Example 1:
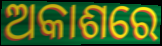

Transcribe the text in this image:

ଅକାଶରେ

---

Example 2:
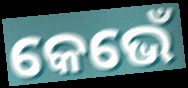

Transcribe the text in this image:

କେଭେଁ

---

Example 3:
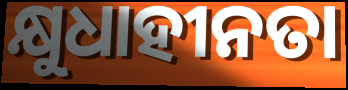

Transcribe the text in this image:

କ୍ଷୁଧାହୀନତା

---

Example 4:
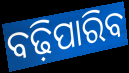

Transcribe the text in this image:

ବଢ଼ିପାରିବ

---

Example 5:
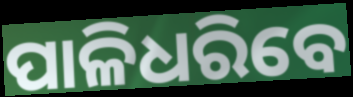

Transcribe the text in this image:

ପାଳିଧରିବେ